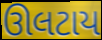
ઊલટાય